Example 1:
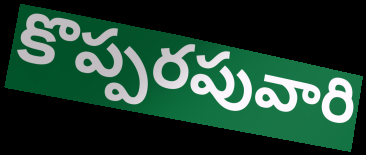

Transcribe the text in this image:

కొప్పరపువారి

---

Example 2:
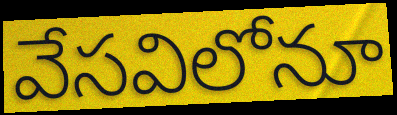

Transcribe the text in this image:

వేసవిలోనూ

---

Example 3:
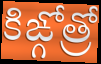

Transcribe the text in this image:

కిఙ్గోత్రో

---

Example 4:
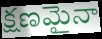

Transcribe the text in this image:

క్షణమైనా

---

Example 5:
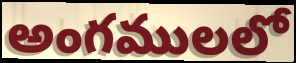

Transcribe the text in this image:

అంగములలో